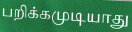
பறிக்கமுடியாது